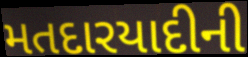
મતદારયાદીની